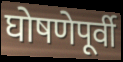
घोषणेपूर्वी